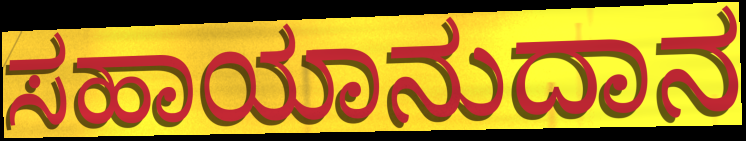
ಸಹಾಯಾನುದಾನ